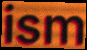
ism